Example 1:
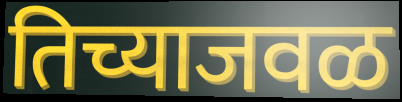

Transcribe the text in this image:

तिच्याजवळ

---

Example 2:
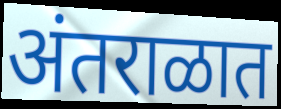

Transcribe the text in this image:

अंतराळात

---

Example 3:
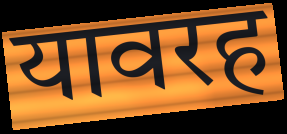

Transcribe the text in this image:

यावरह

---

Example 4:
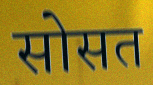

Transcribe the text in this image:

सोसत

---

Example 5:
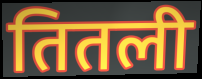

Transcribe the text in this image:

तितली